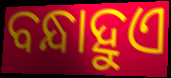
ବନ୍ଧାହୁଏ